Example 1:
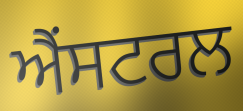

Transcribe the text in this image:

ਐਂਸਟਰਲ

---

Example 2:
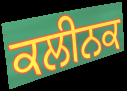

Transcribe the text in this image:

ਕਲੀਨਕ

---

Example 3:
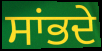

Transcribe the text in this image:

ਸਾਂਭਦੇ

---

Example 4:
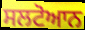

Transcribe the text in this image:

ਸਲਟੋਆਨ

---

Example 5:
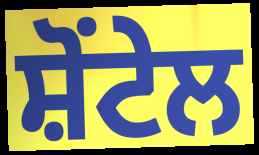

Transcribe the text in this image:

ਸ਼ੋਂਟੇਲ